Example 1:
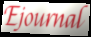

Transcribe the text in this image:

Ejournal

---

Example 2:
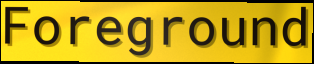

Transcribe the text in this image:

Foreground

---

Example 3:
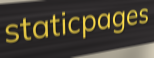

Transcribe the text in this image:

staticpages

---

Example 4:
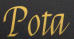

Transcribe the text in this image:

Pota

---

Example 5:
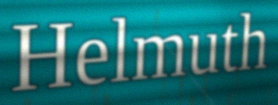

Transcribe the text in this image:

Helmuth